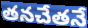
తనచేతనే